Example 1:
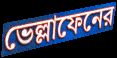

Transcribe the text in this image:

ভেল্লাফেনের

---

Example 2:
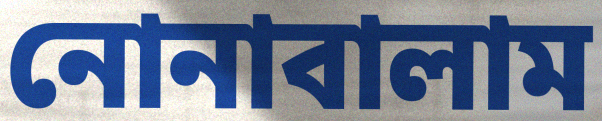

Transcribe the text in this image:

নোনাবালাম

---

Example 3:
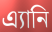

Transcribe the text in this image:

এ্যানি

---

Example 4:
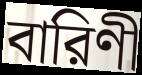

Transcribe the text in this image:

বারিণী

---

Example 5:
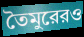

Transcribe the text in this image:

তৈমুরেরও